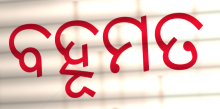
ବହୂମତ